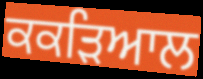
ਕਕੜਿਆਲ